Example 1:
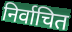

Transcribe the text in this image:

निर्वाचित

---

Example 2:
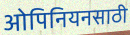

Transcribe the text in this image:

ओपिनियनसाठी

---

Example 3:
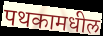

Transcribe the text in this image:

पथकामधील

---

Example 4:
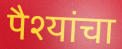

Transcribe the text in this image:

पैश्यांचा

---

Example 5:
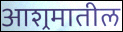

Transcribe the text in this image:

आश्रमातील